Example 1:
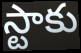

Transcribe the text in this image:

స్టాకు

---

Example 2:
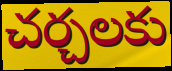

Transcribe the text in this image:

చర్చలకు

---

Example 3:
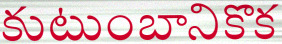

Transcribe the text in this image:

కుటుంబానికొక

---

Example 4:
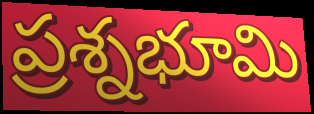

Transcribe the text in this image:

ప్రశ్నభూమి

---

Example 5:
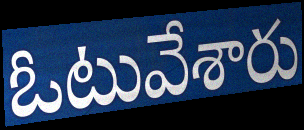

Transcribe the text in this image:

ఓటువేశారు